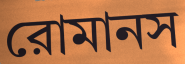
রোমানস